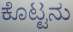
ಕೊಟ್ಟನು